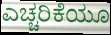
ಎಚ್ಚರಿಕೆಯೂ